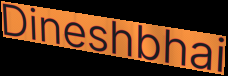
Dineshbhai